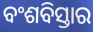
ବଂଶବିସ୍ତାର